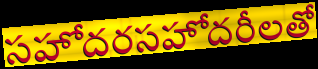
సహోదరసహోదరీలతో